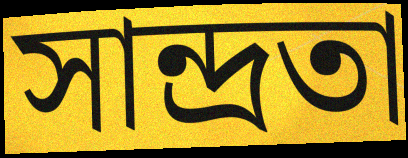
সান্দ্ৰতা